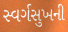
સ્વર્ગસુખની